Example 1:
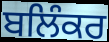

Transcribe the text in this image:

ਬਲਿੰਕਰ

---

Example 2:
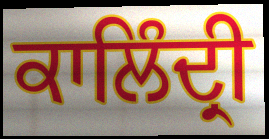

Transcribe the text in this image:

ਕਾਲਿੰਦ੍ਰੀ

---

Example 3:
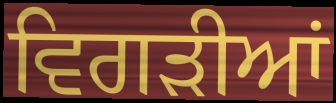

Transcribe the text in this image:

ਵਿਗੜੀਆਂ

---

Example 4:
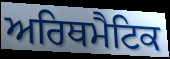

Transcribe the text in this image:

ਅਰਿਥਮੈਟਿਕ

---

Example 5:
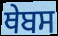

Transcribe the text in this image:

ਥੇਬਸ